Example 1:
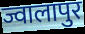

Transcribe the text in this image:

ज्वालापुर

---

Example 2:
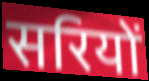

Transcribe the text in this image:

सरियों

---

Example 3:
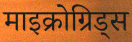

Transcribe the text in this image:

माइक्रोग्रिड्स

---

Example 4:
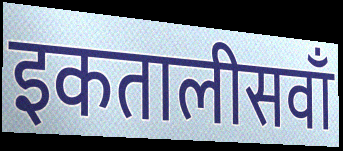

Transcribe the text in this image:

इकतालीसवाँ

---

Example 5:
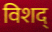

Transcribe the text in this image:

विशद्